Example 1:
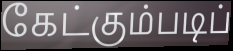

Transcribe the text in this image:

கேட்கும்படிப்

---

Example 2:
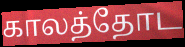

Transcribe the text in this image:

காலத்தோட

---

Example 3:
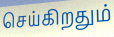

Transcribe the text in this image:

செய்கிறதும்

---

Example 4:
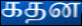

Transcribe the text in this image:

கதன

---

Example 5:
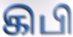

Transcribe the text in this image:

கிபி